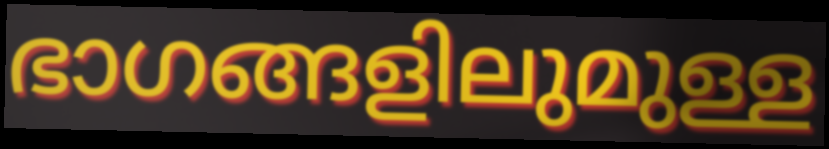
ഭാഗങ്ങളിലുമുള്ള